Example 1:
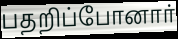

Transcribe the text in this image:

பதறிப்போனார்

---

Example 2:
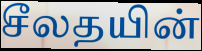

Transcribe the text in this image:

சீலதயின்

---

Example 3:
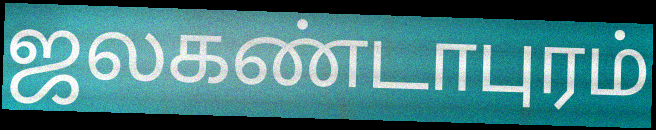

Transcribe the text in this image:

ஜலகண்டாபுரம்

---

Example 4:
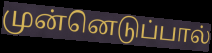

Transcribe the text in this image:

முன்னெடுப்பால்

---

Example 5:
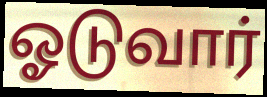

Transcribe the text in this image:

ஓடுவார்